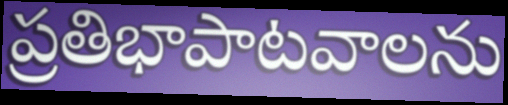
ప్రతిభాపాటవాలను